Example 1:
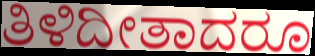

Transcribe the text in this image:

ತಿಳಿದೀತಾದರೂ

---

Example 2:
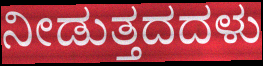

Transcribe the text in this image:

ನೀಡುತ್ತದದಳು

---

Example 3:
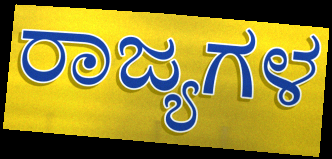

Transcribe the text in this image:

ರಾಜ್ಯಗಳ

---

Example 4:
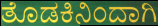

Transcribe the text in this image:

ತೊಡಕಿನಿಂದಾಗಿ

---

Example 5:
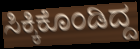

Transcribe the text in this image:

ಸಿಕ್ಕಿಕೊಂಡಿದ್ದ